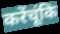
करेंचूंकि